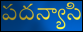
పదన్యాసి